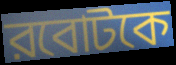
রবোটকে